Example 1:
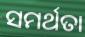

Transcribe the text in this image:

ସମର୍ଥତା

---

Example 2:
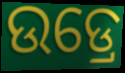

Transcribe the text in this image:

ଉଡ୍ରେ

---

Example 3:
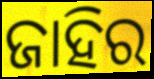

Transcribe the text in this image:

ଜାହିର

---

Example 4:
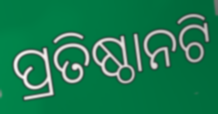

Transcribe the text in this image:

ପ୍ରତିଷ୍ଠାନଟି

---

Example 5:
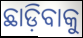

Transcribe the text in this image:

ଛାଡ଼ିବାକୁ